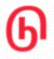
டு